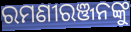
ରମଣୀରଞ୍ଜନଙ୍କୁ